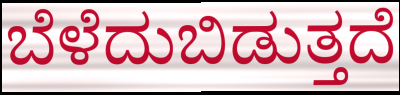
ಬೆಳೆದುಬಿಡುತ್ತದೆ